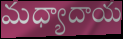
మధ్యాదాయ